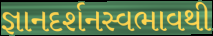
જ્ઞાનદર્શનસ્વભાવથી